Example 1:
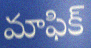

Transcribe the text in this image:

మాఫిక్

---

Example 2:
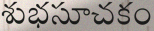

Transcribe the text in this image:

శుభసూచకం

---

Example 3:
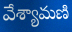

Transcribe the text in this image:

వేశ్యామణి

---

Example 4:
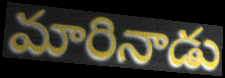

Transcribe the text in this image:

మారినాడు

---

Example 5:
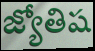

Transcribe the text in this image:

జ్యోతిష